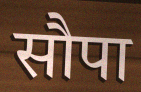
सौपा